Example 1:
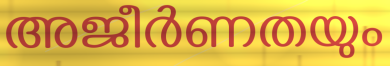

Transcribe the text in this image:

അജീർണതയും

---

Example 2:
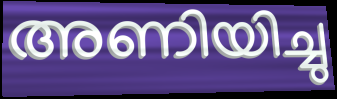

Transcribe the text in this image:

അണിയിച്ചു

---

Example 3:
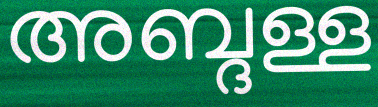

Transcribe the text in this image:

അബ്ദള്ള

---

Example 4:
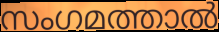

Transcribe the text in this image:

സംഗമത്താൽ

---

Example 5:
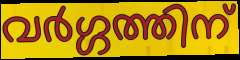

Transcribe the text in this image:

വർഗ്ഗത്തിന്